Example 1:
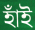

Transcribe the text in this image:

হাঁই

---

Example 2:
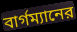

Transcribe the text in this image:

বার্গম্যানের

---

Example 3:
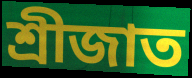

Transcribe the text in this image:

শ্রীজাত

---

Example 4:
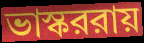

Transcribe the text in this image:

ভাস্কররায়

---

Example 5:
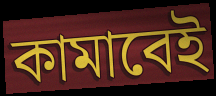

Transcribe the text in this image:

কামাবেই